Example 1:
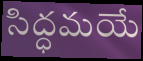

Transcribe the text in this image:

సిద్ధమయే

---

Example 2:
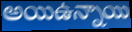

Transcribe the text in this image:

అయిఉన్నాయి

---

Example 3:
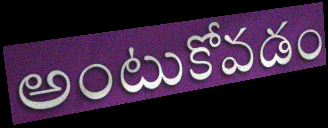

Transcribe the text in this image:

అంటుకోవడం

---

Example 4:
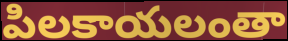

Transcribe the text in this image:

పిలకాయలంతా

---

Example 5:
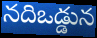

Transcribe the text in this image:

నదిఒడ్డున